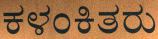
ಕಳಂಕಿತರು